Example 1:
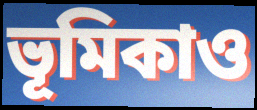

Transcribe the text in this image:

ভূমিকাও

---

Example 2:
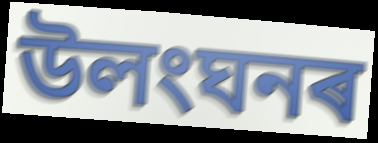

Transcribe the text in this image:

উলংঘনৰ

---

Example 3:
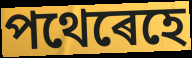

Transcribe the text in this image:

পথেৰেহে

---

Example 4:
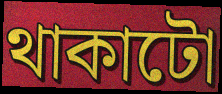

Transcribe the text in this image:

থাকাটো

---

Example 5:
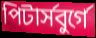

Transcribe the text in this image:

পিটাৰ্সবুৰ্গে